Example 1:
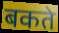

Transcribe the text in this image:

बकते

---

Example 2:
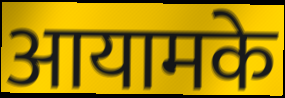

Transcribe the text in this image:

आयामके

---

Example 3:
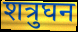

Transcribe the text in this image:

शत्रुघन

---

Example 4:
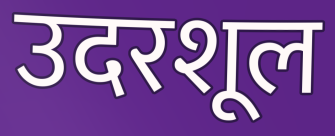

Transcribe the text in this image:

उदरशूल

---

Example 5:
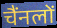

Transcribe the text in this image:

चैंनलों